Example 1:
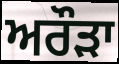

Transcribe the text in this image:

ਅਰੌੜਾ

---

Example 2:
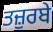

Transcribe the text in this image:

ਤਜ਼ੁਰਬੇ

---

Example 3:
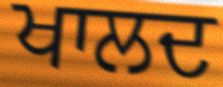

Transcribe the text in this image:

ਖਾਲਦ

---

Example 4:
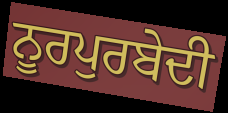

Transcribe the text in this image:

ਨੂਰਪੁਰਬੇਦੀ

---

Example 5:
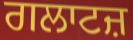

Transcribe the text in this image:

ਗਲਾਟਜ਼